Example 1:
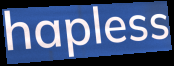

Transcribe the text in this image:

hapless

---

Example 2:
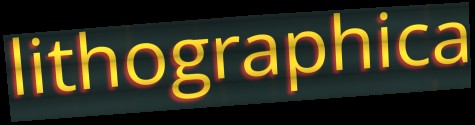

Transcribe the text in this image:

lithographica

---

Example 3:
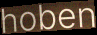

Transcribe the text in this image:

hoben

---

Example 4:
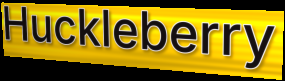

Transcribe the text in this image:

Huckleberry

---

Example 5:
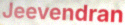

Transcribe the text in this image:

Jeevendran